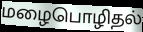
மழைபொழிதல்